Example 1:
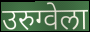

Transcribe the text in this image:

उरुग्वेला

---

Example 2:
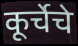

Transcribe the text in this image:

कूर्चेचे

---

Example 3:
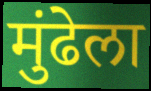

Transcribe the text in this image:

मुंढेला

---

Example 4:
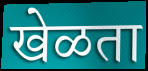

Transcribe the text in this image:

खेळता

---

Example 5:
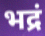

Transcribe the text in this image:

भद्रं